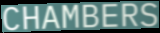
CHAMBERS